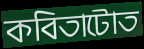
কবিতাটোত